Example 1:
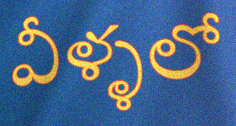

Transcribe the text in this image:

వీళ్ళలో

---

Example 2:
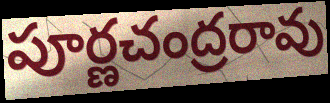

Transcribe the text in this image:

పూర్ణచంద్రరావు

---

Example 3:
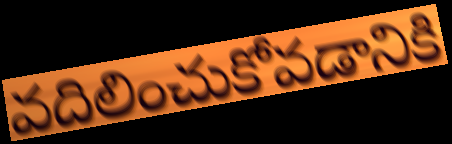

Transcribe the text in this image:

వదిలించుకోవడానికి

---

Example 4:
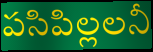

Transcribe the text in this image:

పసిపిల్లలనీ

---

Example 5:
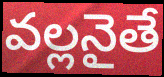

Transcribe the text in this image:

వల్లనైతే